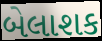
બેલાશક